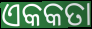
ଏକକତା